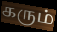
கரும்